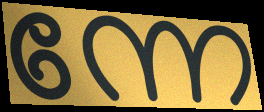
ന്നേ